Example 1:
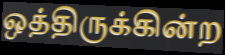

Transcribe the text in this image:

ஒத்திருக்கின்ற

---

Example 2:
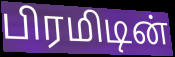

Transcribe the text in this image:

பிரமிடின்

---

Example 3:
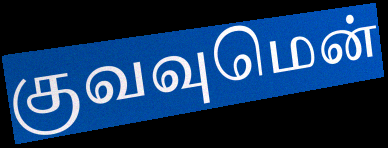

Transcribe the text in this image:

குவவுமென்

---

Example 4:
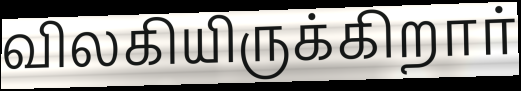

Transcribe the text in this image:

விலகியிருக்கிறார்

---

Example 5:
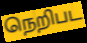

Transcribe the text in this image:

நெறிபட